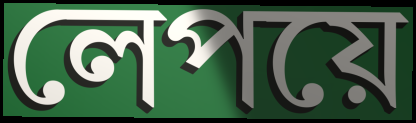
লেপয়ে